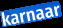
karnaar